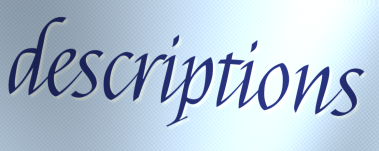
descriptions